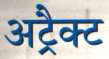
अट्रैक्ट